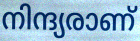
നിന്ദ്യരാണ്